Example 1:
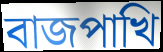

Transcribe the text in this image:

বাজপাখি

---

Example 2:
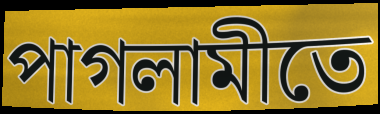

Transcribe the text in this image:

পাগলামীতে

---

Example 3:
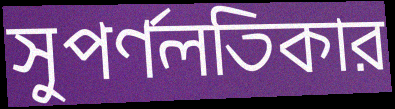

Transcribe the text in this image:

সুপর্ণলতিকার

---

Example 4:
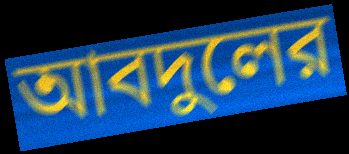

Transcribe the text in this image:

আবদুলের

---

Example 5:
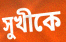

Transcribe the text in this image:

সুখীকে